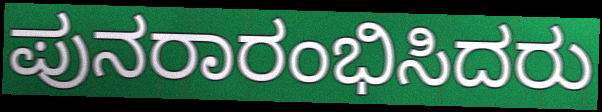
ಪುನರಾರಂಭಿಸಿದರು